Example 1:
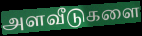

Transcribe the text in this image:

அளவீடுகளை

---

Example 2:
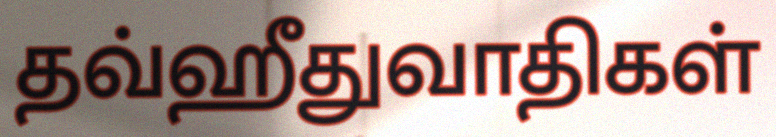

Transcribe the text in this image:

தவ்ஹீதுவாதிகள்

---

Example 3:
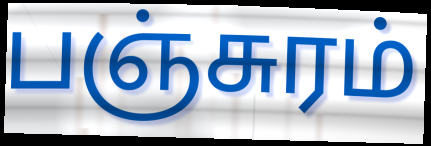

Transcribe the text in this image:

பஞ்சுரம்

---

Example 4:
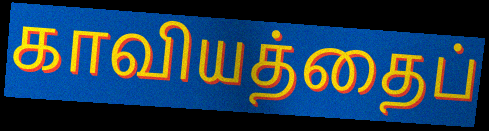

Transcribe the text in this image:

காவியத்தைப்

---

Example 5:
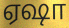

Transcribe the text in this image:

ஏஷா